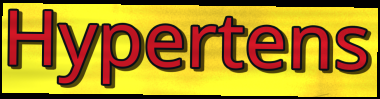
Hypertens